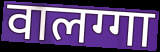
वालग्गा